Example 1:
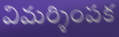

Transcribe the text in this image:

విమర్శింపక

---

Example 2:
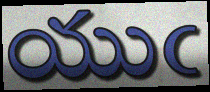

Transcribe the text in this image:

యుఁ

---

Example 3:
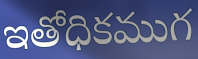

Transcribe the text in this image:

ఇతోధికముగ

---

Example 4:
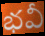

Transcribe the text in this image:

భవీ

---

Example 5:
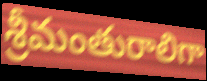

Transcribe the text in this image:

శ్రీమంతురాలిగా